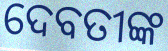
ଦେବତୀଙ୍କ